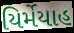
યિર્મેયાહ